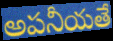
అపనీయతే